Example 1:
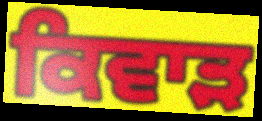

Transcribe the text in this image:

ਕਿਵਾੜ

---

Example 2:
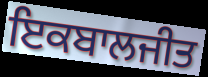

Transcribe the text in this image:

ਇਕਬਾਲਜੀਤ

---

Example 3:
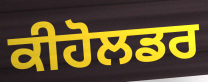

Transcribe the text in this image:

ਕੀਹੋਲਡਰ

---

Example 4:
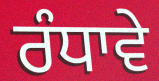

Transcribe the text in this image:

ਰੰਧਾਵੇ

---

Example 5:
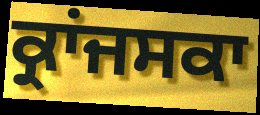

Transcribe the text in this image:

ਕ੍ਰਾਂਜਸਕਾ